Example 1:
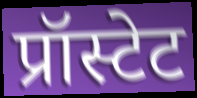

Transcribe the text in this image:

प्रॉस्टेट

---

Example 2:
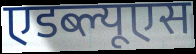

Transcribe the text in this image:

एडब्ल्यूएस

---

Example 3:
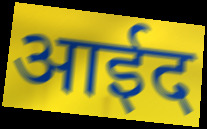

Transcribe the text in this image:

आईद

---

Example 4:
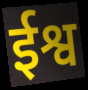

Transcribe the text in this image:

ईश्व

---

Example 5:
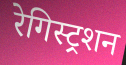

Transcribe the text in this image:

रेगिस्ट्रशन